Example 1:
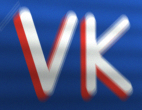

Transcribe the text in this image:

VK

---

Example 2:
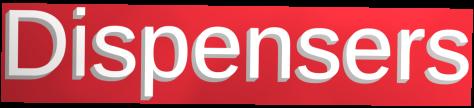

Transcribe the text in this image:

Dispensers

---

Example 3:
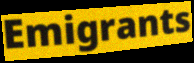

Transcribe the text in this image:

Emigrants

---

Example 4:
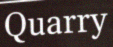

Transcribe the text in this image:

Quarry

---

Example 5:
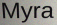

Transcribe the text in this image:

Myra